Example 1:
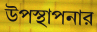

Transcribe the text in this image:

উপস্থাপনার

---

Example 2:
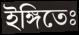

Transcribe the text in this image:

ইঙ্গিতেঃ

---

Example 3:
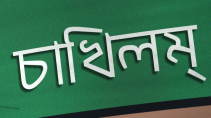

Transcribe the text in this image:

চাখিলম্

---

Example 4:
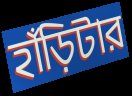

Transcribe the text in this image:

হাঁড়িটার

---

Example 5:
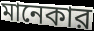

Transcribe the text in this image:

মানেকার